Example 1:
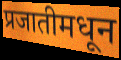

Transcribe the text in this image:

प्रजातीमधून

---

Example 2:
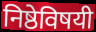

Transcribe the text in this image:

निष्ठेविषयी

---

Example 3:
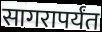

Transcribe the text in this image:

सागरापर्यंत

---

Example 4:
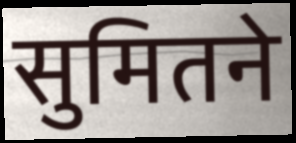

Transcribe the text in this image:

सुमितने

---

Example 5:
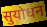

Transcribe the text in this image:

सुयोधन